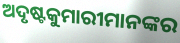
ଅଦୃଷ୍ଟକୁମାରୀମାନଙ୍କର